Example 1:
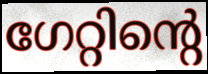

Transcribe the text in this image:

ഗേറ്റിന്റെ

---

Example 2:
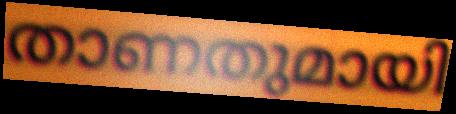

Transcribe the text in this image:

താണതുമായി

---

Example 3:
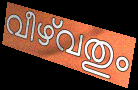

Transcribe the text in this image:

വീഴ്‌വതും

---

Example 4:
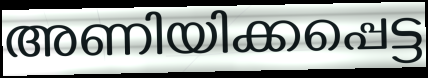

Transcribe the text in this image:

അണിയിക്കപ്പെട്ട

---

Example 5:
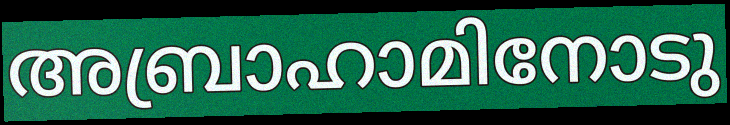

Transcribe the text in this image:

അബ്രാഹാമിനോടു